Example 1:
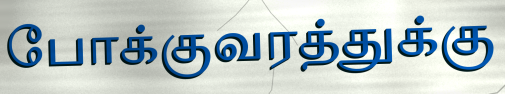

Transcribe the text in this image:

போக்குவரத்துக்கு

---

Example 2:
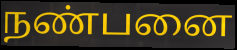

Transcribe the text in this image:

நண்பனை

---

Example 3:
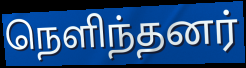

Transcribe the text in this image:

நெளிந்தனர்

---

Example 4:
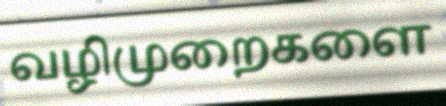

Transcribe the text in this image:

வழிமுறைகளை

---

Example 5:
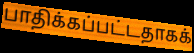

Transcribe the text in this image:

பாதிக்கப்பட்டதாகக்